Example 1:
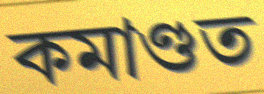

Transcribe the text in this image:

কমাণ্ডত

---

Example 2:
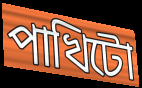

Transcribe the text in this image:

পাখিটো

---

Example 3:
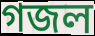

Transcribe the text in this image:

গজল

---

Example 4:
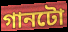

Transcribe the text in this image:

গানটো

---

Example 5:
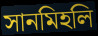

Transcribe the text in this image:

সানমিহলি